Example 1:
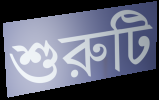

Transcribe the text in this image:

শুরুটি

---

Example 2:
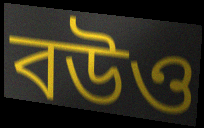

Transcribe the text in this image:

বউও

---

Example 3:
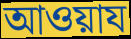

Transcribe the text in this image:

আওয়ায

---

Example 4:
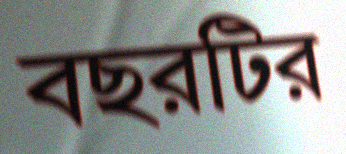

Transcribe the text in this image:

বছরটির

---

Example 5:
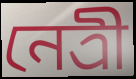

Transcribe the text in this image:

নেত্রী